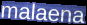
malaena